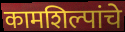
कामशिल्पांचे